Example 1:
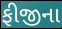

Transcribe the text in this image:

ફીજીના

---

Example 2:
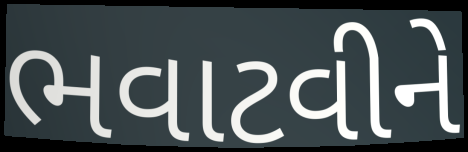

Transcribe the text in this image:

ભવાટવીને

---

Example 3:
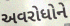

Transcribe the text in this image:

અવરોધોને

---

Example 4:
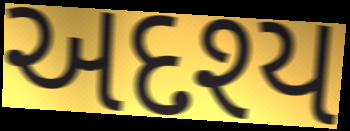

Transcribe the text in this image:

અદશ્ય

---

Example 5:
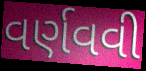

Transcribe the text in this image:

વર્ણવવી